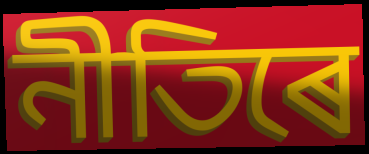
নীতিৰে